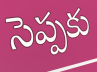
సెప్పకు